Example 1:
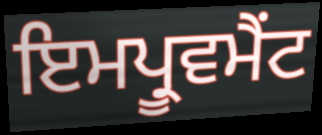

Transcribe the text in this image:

ਇਮਪ੍ਰੂਵਮੈਂਟ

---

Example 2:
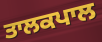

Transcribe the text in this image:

ਤਾਲਕਪਾਲ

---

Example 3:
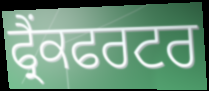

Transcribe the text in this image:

ਫ੍ਰੈਂਕਫਰਟਰ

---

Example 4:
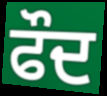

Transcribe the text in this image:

ਫੌਦ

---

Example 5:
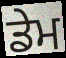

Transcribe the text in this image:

ਡੇਮ